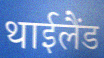
थाईलैंड